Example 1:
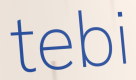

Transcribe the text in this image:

tebi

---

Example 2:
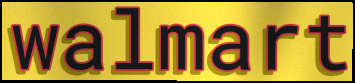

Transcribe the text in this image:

walmart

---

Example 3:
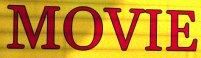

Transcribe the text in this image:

MOVIE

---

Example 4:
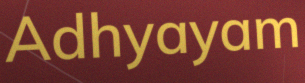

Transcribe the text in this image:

Adhyayam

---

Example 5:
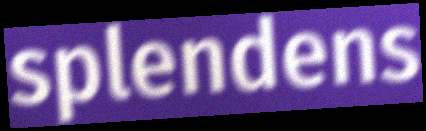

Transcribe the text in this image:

splendens